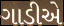
ગાડીએ